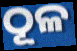
ଠୂଳ